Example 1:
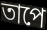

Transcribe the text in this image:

তাপে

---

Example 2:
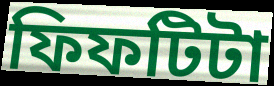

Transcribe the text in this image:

ফিফটিটা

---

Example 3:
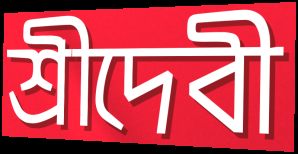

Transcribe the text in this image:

শ্রীদেবী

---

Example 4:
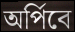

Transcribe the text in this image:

অর্পিবে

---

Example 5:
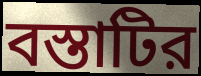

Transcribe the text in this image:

বস্তাটির